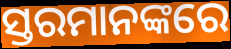
ସ୍ତରମାନଙ୍କରେ